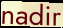
nadir